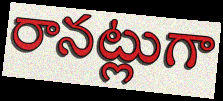
రానట్లుగా